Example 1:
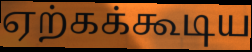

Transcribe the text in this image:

ஏற்கக்கூடிய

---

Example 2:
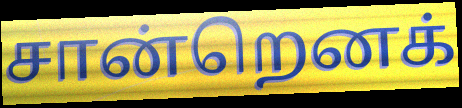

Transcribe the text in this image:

சான்றெனக்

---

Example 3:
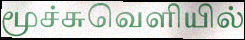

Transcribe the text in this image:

மூச்சுவெளியில்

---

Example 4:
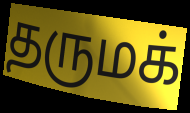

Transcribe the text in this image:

தருமக்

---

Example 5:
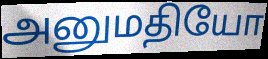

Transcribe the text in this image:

அனுமதியோ